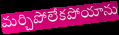
మర్చిపోలేకపోయాను